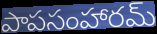
పాపసంహారమ్